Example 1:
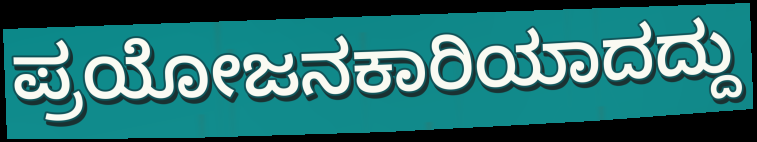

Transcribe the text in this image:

ಪ್ರಯೋಜನಕಾರಿಯಾದದ್ದು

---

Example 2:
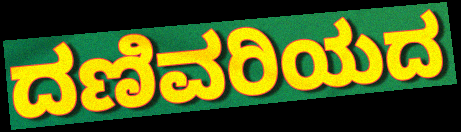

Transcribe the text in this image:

ದಣಿವರಿಯದ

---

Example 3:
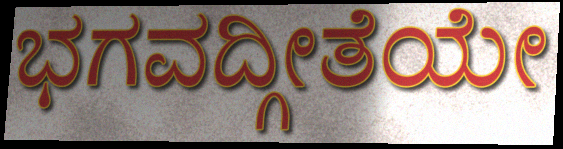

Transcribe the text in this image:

ಭಗವದ್ಗೀತೆಯೇ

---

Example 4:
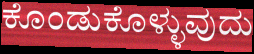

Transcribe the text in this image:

ಕೊಂಡುಕೊಳ್ಳುವುದು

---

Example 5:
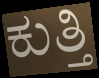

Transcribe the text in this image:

ಕುತ್ತಿ